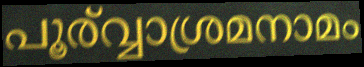
പൂര്വ്വാശ്രമനാമം